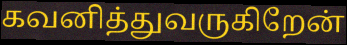
கவனித்துவருகிறேன்